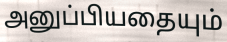
அனுப்பியதையும்